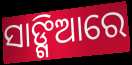
ସାଙ୍ଗିଆରେ